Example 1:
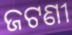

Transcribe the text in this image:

ଜଟଣୀ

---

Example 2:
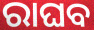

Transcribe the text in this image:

ରାଘବ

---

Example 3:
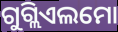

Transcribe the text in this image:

ଗୁଗ୍ଲିଏଲମୋ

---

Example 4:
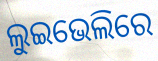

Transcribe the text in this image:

ଲୁଇଭେଲିରେ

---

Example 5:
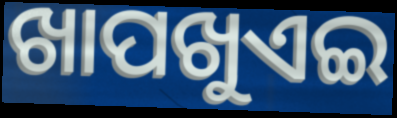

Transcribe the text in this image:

ଖାପଖୁଏଇ